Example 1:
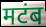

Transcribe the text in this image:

मटंब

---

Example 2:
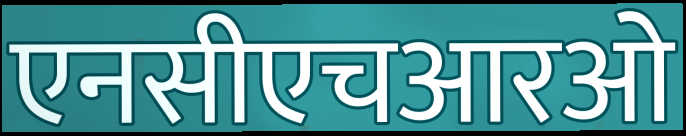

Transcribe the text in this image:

एनसीएचआरओ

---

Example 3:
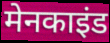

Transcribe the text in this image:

मेनकाइंड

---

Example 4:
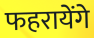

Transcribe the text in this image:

फहरायेंगे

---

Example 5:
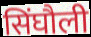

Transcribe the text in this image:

सिंघौली